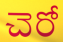
చెరో